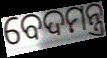
ବେଦମନ୍ତ୍ର